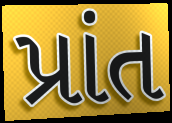
પ્રાંત